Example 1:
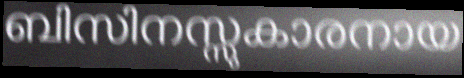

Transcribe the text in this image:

ബിസിനസ്സുകാരനായ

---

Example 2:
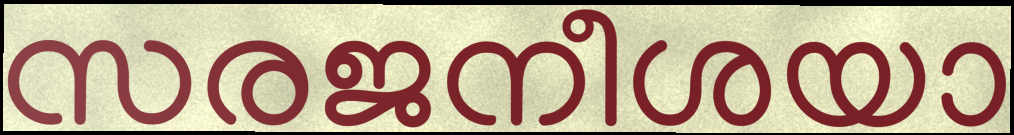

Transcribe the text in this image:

സരജനീശയാ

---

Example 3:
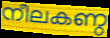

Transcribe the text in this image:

നീലകണ്ഠ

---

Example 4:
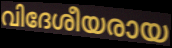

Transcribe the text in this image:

വിദേശീയരായ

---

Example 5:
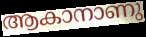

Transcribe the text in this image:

ആകാനാണു